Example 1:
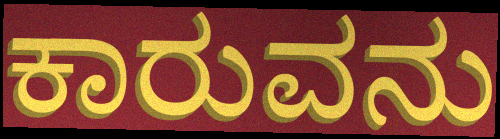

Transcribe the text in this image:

ಕಾರುವನು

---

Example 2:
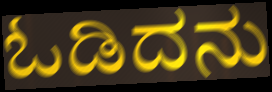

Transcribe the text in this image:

ಓಡಿದನು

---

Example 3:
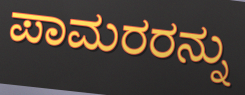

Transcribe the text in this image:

ಪಾಮರರನ್ನು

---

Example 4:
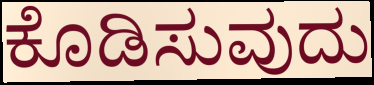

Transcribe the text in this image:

ಕೊಡಿಸುವುದು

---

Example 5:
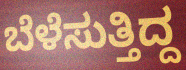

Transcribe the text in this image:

ಬೆಳೆಸುತ್ತಿದ್ದ